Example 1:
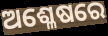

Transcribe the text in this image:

ଅଶ୍ଳେଷରେ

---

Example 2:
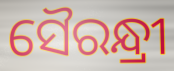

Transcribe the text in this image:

ସୈରନ୍ଧ୍ରୀ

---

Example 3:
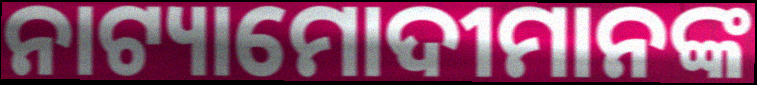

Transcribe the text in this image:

ନାଟ୍ୟାମୋଦୀମାନଙ୍କ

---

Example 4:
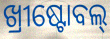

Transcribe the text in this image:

ଖ୍ରୀଷ୍ଟୋବଲ୍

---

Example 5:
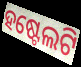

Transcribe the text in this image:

ହଷ୍ଟେଲଟି